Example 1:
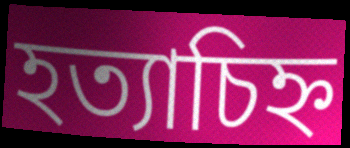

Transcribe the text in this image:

হত্যাচিহ্ন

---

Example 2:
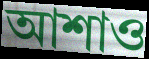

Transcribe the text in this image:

আশাও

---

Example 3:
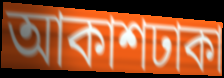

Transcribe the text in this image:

আকাশঢাকা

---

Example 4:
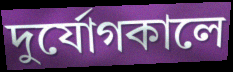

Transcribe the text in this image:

দুর্যোগকালে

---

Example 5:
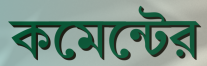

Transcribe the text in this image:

কমেন্টের